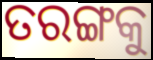
ତରଙ୍ଗକୁ